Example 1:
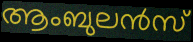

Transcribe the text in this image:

ആംബുലൻസ്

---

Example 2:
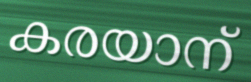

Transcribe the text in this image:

കരയാന്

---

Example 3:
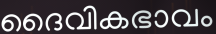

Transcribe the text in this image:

ദൈവികഭാവം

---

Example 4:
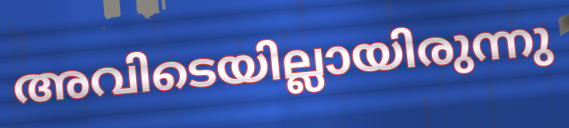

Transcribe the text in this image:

അവിടെയില്ലായിരുന്നു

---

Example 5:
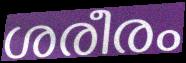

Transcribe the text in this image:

ശരീരം